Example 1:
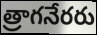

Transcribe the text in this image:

త్రాగనేరరు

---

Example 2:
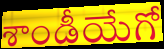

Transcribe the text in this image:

శాండీయేగో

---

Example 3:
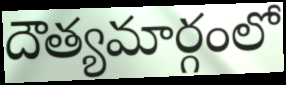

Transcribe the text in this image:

దౌత్యమార్గంలో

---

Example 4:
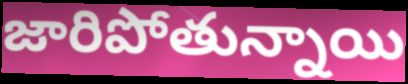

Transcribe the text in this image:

జారిపోతున్నాయి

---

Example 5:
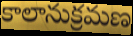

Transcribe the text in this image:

కాలానుక్రమణ